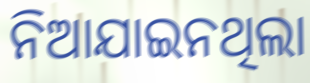
ନିଆଯାଇନଥିଲା